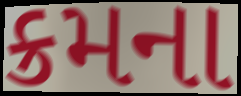
ક્રમના